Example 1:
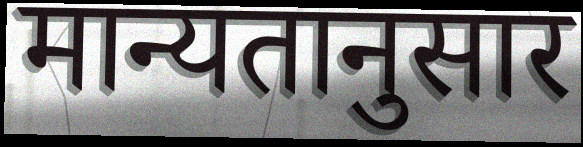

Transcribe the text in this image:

मान्यतानुसार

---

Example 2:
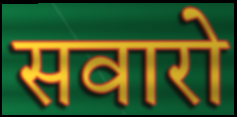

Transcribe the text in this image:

सवारो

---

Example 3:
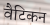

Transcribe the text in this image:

वैटिकन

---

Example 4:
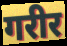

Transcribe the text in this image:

गरीर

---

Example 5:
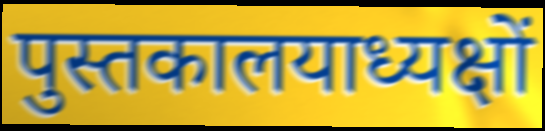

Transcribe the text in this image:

पुस्तकालयाध्यक्षों